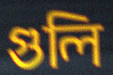
গুলি